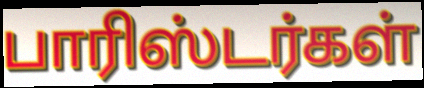
பாரிஸ்டர்கள்